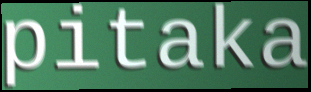
pitaka